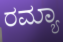
ರಮ್ಯಾ